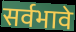
सर्वभावे